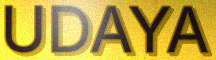
UDAYA